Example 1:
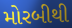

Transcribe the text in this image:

મોરબીથી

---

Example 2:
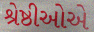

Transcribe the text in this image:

શ્રેષ્ઠીઓએ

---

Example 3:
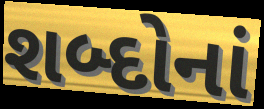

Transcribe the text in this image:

શબ્દોનાં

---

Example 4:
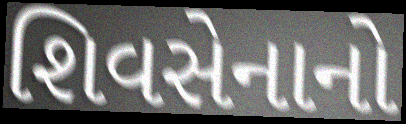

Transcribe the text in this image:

શિવસેનાનો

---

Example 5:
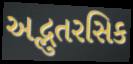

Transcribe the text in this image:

અદ્ભુતરસિક